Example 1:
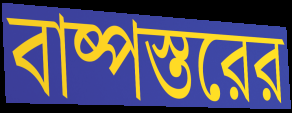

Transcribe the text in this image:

বাষ্পস্তরের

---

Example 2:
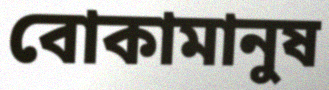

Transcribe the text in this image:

বোকামানুষ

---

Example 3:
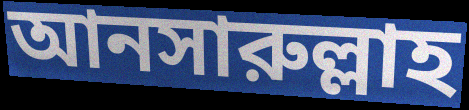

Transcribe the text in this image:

আনসারুল্লাহ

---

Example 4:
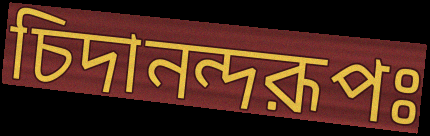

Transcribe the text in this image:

চিদানন্দরূপঃ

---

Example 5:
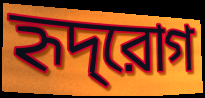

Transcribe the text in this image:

হৃদ্‌রোগ